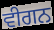
ਵੀਗਨ